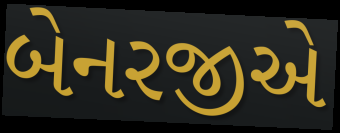
બેનરજીએ